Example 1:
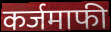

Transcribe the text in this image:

कर्जमाफी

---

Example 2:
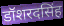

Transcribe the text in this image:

डॉशरदसिंह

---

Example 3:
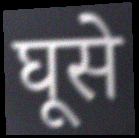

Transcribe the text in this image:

घूसे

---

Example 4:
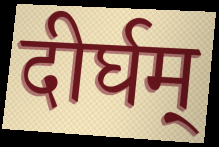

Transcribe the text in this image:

दीर्घम्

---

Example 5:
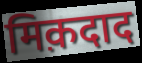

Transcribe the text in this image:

मिक़दाद